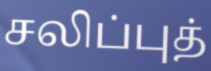
சலிப்புத்